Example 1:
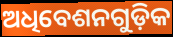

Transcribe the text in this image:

ଅଧିବେଶନଗୁଡ଼ିକ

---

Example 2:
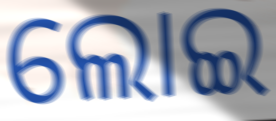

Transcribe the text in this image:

ଲୋଇ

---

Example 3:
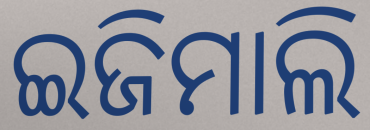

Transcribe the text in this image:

ଇଜିମାଲି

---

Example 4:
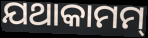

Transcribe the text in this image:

ଯଥାକାମମ୍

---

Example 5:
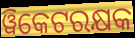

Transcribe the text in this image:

ୱିକେଟରକ୍ଷକ